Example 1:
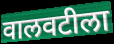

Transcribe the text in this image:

वालवटीला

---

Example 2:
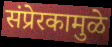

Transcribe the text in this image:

संप्रेरकामुळे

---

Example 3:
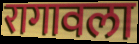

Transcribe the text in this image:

रागावला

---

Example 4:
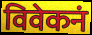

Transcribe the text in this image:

विवेकनं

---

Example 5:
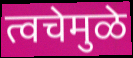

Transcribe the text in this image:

त्वचेमुळे